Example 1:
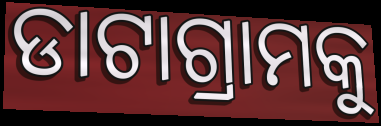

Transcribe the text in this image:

ଡାଟାଗ୍ରାମକୁ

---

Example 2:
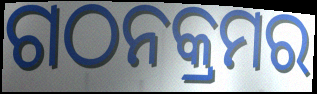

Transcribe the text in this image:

ଗଠନକ୍ରମର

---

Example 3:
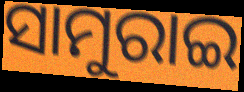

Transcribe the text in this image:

ସାମୁରାଇ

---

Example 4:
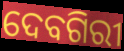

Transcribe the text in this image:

ଦେବଗିରୀ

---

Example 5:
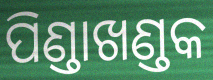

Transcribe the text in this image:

ପିଣ୍ଡାଖଣ୍ଡକ